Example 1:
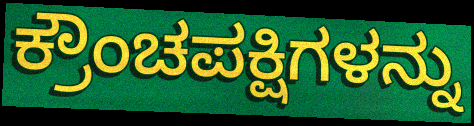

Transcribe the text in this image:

ಕ್ರೌಂಚಪಕ್ಷಿಗಳನ್ನು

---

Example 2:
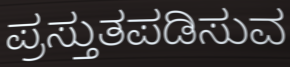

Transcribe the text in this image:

ಪ್ರಸ್ತುತಪಡಿಸುವ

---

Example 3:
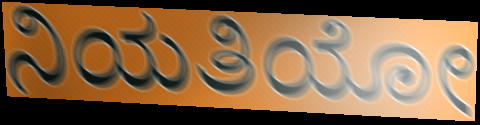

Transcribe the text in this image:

ನಿಯತಿಯೋ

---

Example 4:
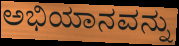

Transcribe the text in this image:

ಅಭಿಯಾನವನ್ನು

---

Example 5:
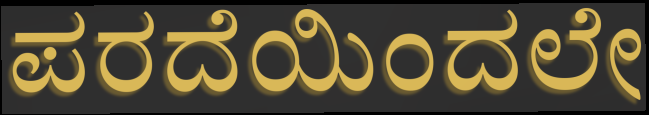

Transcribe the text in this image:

ಪರದೆಯಿಂದಲೇ